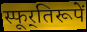
स्फूर्तिरूपें